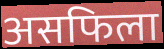
असफिला